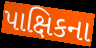
પાક્ષિકના